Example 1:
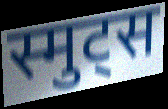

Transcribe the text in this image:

स्मुट्स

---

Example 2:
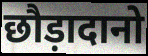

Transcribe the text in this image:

छौड़ादानो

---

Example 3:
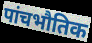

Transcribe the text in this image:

पांचभौतिक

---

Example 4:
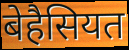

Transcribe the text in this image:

बेहैसियत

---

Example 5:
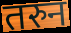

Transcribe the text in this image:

तरुन